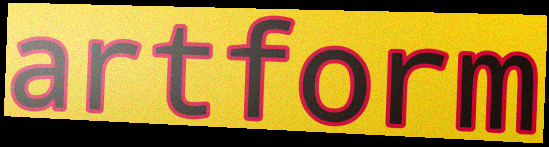
artform